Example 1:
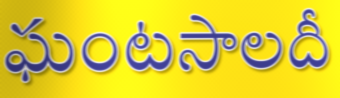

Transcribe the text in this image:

ఘంటసాలదీ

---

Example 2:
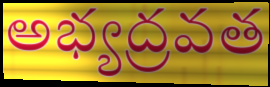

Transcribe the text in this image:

అభ్యద్రవత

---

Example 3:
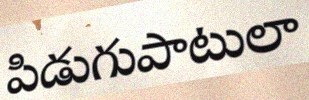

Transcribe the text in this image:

పిడుగుపాటులా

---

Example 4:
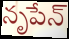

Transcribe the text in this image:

నృపేన్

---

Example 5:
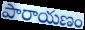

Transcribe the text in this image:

పారాయణం